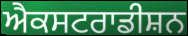
ਐਕਸਟਰਾਡੀਸ਼ਨ